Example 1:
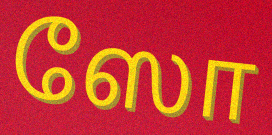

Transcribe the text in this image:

ஸோ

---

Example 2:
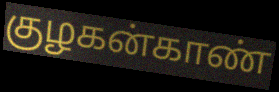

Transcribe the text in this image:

குழகன்காண்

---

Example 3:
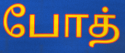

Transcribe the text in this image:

போத்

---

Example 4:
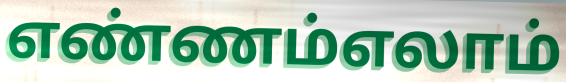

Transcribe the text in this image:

எண்ணம்எலாம்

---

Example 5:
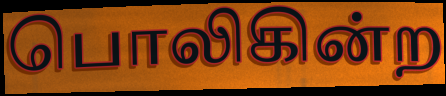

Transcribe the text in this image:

பொலிகின்ற